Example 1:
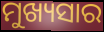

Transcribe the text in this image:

ମୁଖ୍ୟସାର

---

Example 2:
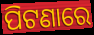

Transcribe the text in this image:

ପିଟଣାରେ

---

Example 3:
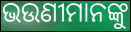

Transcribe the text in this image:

ଭଉଣୀମାନଙ୍କୁ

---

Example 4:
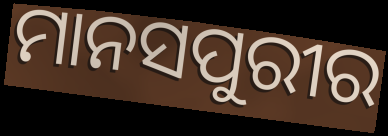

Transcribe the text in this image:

ମାନସପୁରୀର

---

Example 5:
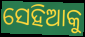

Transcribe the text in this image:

ସେହିଆକୁ